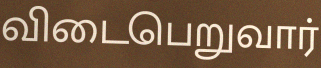
விடைபெறுவார்